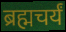
ब्रह्मचर्यं